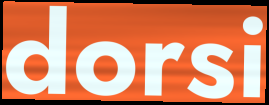
dorsi